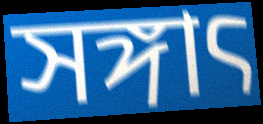
সঙ্গাৎ